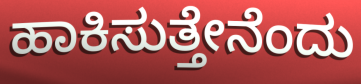
ಹಾಕಿಸುತ್ತೇನೆಂದು